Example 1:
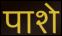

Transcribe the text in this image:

पाशे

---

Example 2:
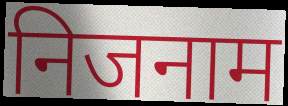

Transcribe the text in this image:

निजनाम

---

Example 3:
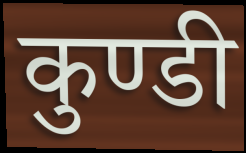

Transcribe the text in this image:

कुण्डी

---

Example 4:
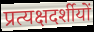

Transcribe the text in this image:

प्रत्यक्षदर्शीयों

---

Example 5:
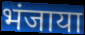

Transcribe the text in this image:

भंजाया